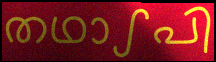
തഥാഽപി